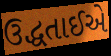
ઉદ્ધતાઈએ